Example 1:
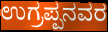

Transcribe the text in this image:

ಉಗ್ರಪ್ಪನವರ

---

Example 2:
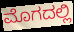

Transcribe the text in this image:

ಮೊಗದಲ್ಲಿ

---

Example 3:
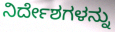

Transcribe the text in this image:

ನಿರ್ದೇಶಗಳನ್ನು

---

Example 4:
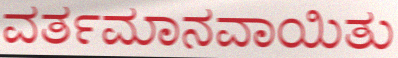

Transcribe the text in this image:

ವರ್ತಮಾನವಾಯಿತು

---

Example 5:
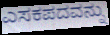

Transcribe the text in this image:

ಎಸಕಪದವನ್ನು